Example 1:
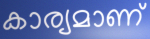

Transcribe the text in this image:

കാര്യമാണ്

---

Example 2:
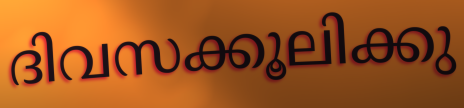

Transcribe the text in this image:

ദിവസക്കൂലിക്കു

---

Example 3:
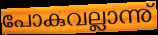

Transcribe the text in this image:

പോകുവല്ലാന്നു്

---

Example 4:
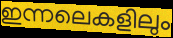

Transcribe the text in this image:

ഇന്നലെകളിലും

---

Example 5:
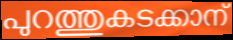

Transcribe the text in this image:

പുറത്തുകടക്കാന്